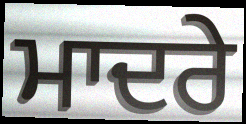
ਮਾਦਰੇ